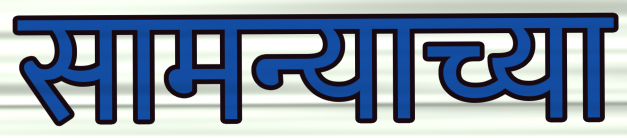
सामन्याच्या